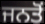
ਜਨਤੋਂ